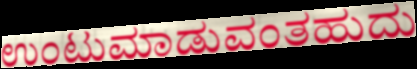
ಉಂಟುಮಾಡುವಂತಹುದು